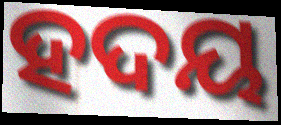
ହଦୟ